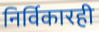
निर्विकारही